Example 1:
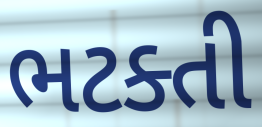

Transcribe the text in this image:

ભટક્તી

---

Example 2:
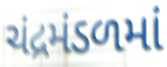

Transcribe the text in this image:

ચંદ્રમંડળમાં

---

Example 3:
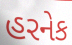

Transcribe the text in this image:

હરનેક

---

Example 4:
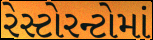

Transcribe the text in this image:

રેસ્ટોરન્ટોમાં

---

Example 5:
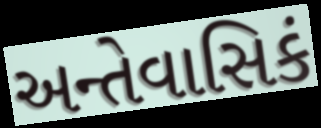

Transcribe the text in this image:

અન્તેવાસિકં